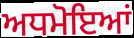
ਅਧਮੋਇਆਂ